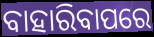
ବାହାରିବାପରେ